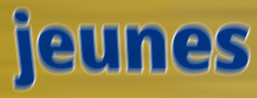
jeunes